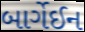
બાર્ગેઈન